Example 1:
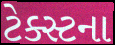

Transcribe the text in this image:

ટેક્સ્ટના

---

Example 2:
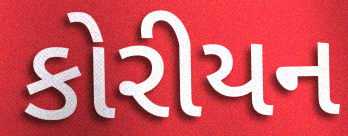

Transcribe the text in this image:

કોરીયન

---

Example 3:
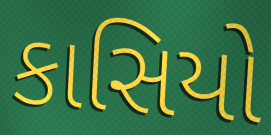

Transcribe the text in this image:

કાસિયો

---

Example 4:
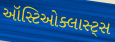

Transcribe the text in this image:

ઑસ્ટિઓક્લાસ્ટ્સ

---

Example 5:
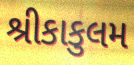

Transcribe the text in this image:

શ્રીકાકુલમ